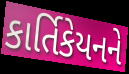
કાર્તિકેયનને